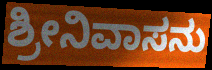
ಶ್ರೀನಿವಾಸನು